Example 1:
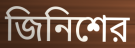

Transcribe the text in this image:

জিনিশের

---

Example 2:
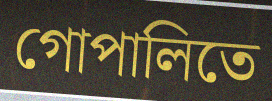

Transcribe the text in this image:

গোপালিতে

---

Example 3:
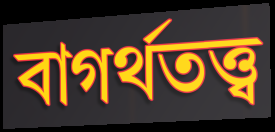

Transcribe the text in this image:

বাগর্থতত্ত্ব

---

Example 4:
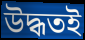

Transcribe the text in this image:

উদ্ধতই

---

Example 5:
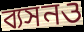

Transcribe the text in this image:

ব্যসনও